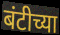
बंटीच्या